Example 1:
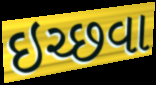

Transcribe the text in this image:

ઇચ્છવા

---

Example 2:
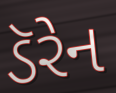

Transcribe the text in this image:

ડૅરેન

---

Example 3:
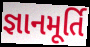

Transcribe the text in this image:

જ્ઞાનમૂર્તિ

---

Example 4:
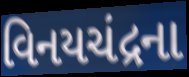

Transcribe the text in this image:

વિનયચંદ્રના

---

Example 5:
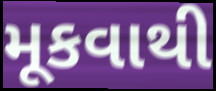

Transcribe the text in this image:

મૂકવાથી